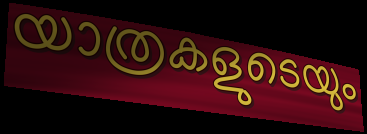
യാത്രകളുടെയും